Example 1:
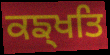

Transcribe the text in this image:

ਕਙ੍ਖਤਿ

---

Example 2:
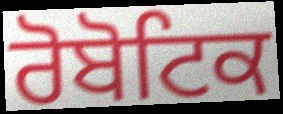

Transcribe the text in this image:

ਰੋਬੋਟਿਕ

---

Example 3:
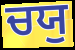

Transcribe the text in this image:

ਚਯੁ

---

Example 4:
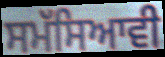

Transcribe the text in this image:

ਸਮੱਸਿਆਵੀ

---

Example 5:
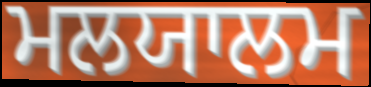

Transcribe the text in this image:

ਮਲਯਾਲਮ